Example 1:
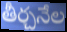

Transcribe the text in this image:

తీర్చనేల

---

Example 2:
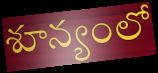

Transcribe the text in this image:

శూన్యంలో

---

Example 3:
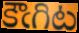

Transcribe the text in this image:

కౌఁగిట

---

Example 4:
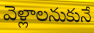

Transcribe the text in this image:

వెళ్లాలనుకునే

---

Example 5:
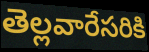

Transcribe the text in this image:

తెల్లవారేసరికి